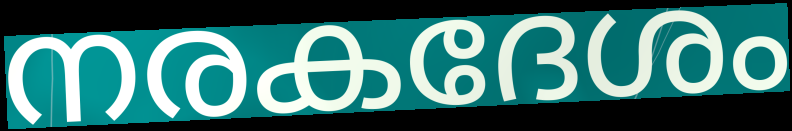
നരകദേശം